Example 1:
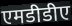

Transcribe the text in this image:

एमडीडीए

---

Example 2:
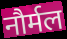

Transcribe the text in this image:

नौर्मल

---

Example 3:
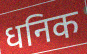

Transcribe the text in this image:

धनिक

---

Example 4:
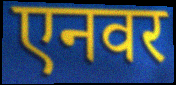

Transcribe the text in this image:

एनवर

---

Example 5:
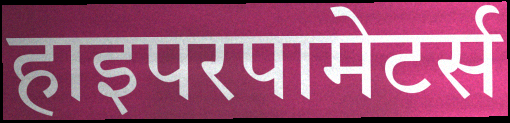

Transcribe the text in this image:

हाइपरपामेटर्स